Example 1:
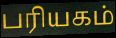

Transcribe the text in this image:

பரியகம்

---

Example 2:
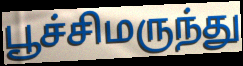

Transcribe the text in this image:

பூச்சிமருந்து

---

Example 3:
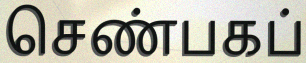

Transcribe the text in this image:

செண்பகப்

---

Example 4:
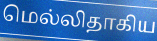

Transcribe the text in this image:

மெல்லிதாகிய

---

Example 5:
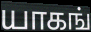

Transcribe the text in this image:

யாகங்